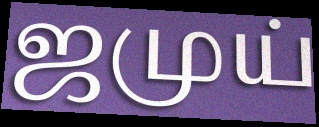
ஜமுய்